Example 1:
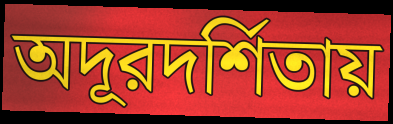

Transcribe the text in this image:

অদূরদর্শিতায়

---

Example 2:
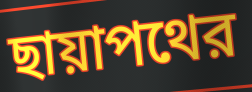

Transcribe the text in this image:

ছায়াপথের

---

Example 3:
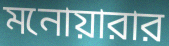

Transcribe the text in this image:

মনোয়ারার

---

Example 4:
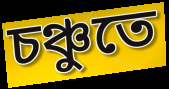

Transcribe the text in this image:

চঞ্চুতে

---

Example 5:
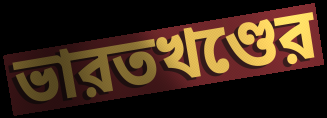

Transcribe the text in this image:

ভারতখণ্ডের